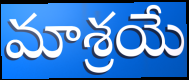
మాశ్రయే